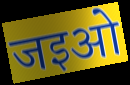
जइओ